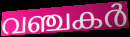
വഞ്ചകർ